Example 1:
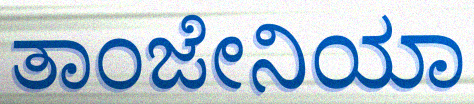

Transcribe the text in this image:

ತಾಂಜೇನಿಯಾ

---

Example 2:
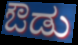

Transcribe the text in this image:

ಔಡು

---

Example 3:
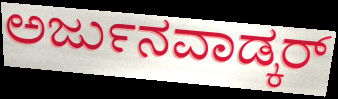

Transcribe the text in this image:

ಅರ್ಜುನವಾಡ್ಕರ್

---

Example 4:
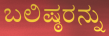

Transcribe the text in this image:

ಬಲಿಷ್ಠರನ್ನು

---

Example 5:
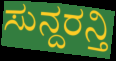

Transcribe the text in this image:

ಸುನ್ದರನ್ತಿ